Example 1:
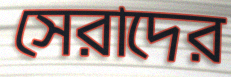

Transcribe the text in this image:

সেরাদের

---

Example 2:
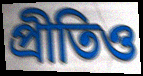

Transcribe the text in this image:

প্রীতিও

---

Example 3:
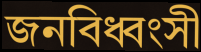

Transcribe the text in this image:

জনবিধ্বংসী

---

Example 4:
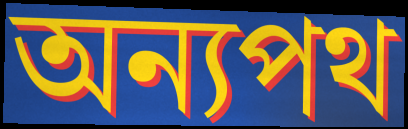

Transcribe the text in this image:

অন্যপথ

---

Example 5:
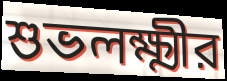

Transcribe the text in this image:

শুভলক্ষ্মীর